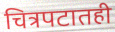
चित्रपटातही